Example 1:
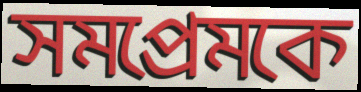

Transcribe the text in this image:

সমপ্রেমকে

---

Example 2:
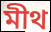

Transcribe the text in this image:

মীথ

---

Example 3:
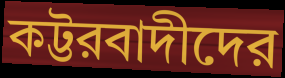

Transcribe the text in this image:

কট্টরবাদীদের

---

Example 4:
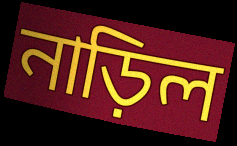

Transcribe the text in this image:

নাড়িল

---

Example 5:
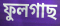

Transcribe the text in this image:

ফুলগাছ